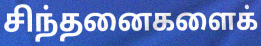
சிந்தனைகளைக்